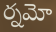
ర్నమో